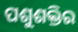
ପଶୁଶକ୍ତିର